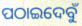
ପଠାଇଦେବୁଁ